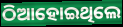
ଠିଆହୋଇଥିଲେ